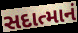
સદાત્માનં